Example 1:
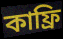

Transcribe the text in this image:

কাফ্রি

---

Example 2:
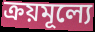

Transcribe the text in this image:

ক্রয়মূল্যে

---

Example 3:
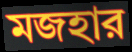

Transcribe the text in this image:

মজহার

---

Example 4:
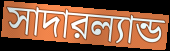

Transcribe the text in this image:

সাদারল্যান্ড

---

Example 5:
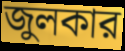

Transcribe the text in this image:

জুলকার